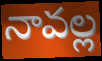
నావల్ల